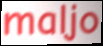
maljo